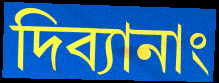
দিব্যানাং